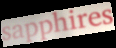
sapphires